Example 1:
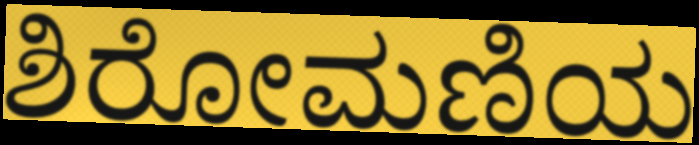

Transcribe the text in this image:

ಶಿರೋಮಣಿಯ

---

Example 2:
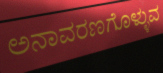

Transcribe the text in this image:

ಅನಾವರಣಗೊಳ್ಳುವ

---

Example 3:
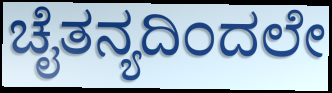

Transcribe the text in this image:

ಚೈತನ್ಯದಿಂದಲೇ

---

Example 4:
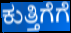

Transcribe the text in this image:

ಕುತ್ತಿಗೆಗೆ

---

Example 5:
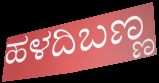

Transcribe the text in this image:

ಹಳದಿಬಣ್ಣ